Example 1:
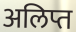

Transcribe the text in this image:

अलिप्त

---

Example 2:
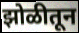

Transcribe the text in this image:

झोळीतून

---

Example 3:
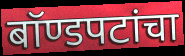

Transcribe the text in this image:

बॉण्डपटांचा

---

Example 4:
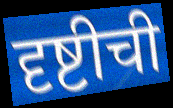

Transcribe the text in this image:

दृष्टीची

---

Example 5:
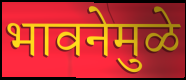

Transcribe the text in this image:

भावनेमुळे